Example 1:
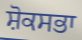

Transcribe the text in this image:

ਸ਼ੋਕਸਭਾ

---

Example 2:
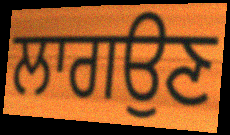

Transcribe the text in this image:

ਲਾਗਉਣ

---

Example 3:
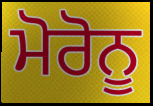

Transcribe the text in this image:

ਮੋਰੋਨੂ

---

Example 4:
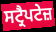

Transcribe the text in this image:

ਸਟ੍ਰੈਪਟੇਜ਼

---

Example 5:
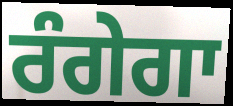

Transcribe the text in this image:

ਰੰਗੇਗਾ